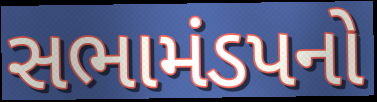
સભામંડપનો